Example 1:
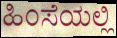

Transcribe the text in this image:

ಹಿಂಸೆಯಲ್ಲಿ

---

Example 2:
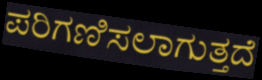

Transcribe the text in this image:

ಪರಿಗಣಿಸಲಾಗುತ್ತದೆ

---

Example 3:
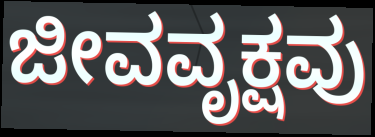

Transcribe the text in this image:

ಜೀವವೃಕ್ಷವು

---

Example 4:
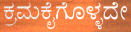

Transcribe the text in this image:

ಕ್ರಮಕೈಗೊಳ್ಳದೇ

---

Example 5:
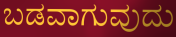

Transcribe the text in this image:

ಬಡವಾಗುವುದು